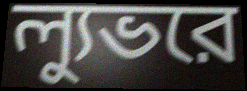
ল্যুভরে